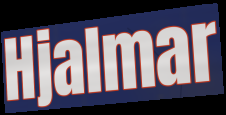
Hjalmar